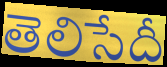
తెలిసేదీ